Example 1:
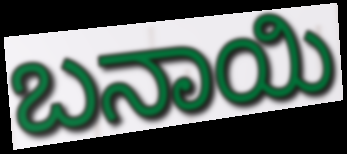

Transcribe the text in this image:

ಬನಾಯಿ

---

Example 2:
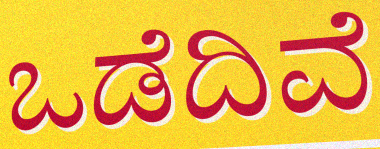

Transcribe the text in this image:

ಒಡೆದಿವೆ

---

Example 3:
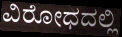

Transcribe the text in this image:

ವಿರೋಧದಲ್ಲಿ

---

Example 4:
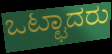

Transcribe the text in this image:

ಒಟ್ಟಾದರು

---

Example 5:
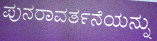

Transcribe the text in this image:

ಪುನರಾವರ್ತನೆಯನ್ನು